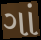
ગાં